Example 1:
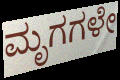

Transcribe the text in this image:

ಮೃಗಗಳೇ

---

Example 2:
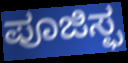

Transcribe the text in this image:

ಪೂಜಿಸ್ಫ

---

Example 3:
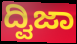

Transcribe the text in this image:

ದ್ವಿಜಾ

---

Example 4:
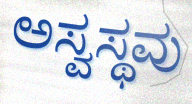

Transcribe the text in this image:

ಅಸ್ವಸ್ಥವು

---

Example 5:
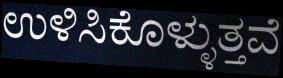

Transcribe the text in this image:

ಉಳಿಸಿಕೊಳ್ಳುತ್ತವೆ